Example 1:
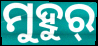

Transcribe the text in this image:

ମୁହୁର୍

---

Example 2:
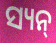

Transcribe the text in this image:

ସ୍ୟନ୍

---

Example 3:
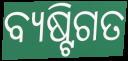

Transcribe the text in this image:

ବ୍ୟଷ୍ଟିଗତ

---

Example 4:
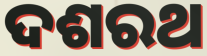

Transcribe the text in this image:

ଦଶରଥ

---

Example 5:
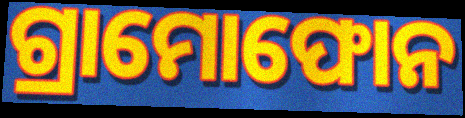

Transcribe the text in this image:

ଗ୍ରାମୋଫୋନ